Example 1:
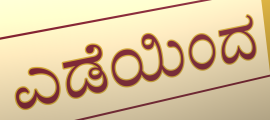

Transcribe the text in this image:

ಎಡೆಯಿಂದ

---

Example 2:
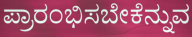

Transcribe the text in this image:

ಪ್ರಾರಂಭಿಸಬೇಕೆನ್ನುವ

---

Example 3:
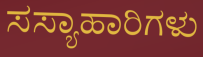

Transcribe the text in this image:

ಸಸ್ಯಾಹಾರಿಗಳು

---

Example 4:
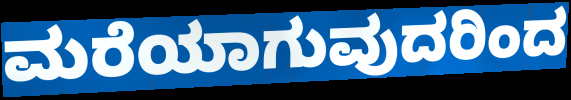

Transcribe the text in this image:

ಮರೆಯಾಗುವುದರಿಂದ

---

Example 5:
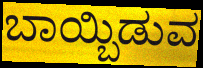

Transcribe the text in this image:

ಬಾಯ್ಬಿಡುವ